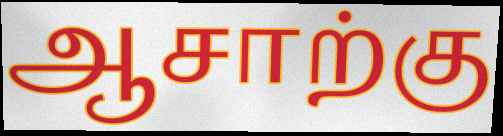
ஆசாற்கு